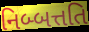
નિબ્બત્તતિ